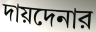
দায়দেনার